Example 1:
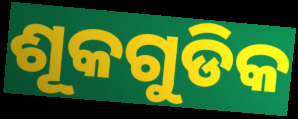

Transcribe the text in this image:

ଶୂକଗୁଡିକ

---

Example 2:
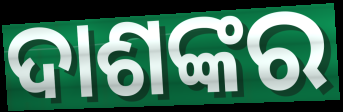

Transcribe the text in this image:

ଦାଶଙ୍କର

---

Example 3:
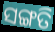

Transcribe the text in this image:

ସଙ୍ଗତି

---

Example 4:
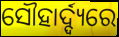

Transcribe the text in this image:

ସୌହାର୍ଦ୍ଦ୍ୟରେ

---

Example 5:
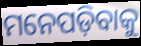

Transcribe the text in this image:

ମନେପଡ଼ିବାକୁ